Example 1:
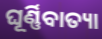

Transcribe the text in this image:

ଘୂର୍ଣ୍ଣିବାତ୍ୟା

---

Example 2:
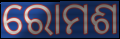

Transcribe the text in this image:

ରୋମଶ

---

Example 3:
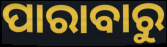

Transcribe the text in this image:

ପାରାବାରୁ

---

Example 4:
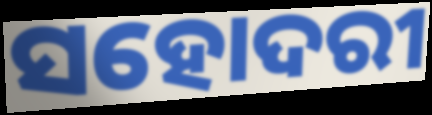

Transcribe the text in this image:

ସହୋଦରୀ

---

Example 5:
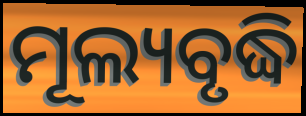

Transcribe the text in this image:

ମୂଲ୍ୟବୃଦ୍ଧି